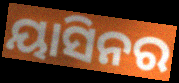
ୟାସିନର